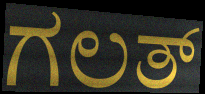
ಗಲತ್